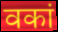
वकां